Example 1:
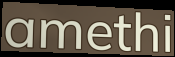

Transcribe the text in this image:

amethi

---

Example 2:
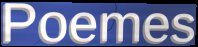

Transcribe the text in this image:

Poemes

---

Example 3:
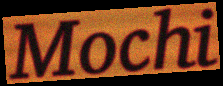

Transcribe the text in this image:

Mochi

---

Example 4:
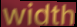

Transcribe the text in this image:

width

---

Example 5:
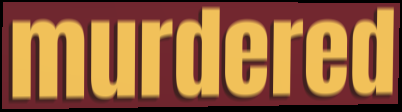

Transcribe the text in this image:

murdered